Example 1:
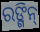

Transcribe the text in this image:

ରଙ୍ଗିନ୍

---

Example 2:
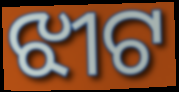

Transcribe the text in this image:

ଝୀଟ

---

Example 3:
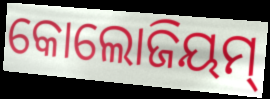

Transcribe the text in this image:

କୋଲୋଜିୟମ୍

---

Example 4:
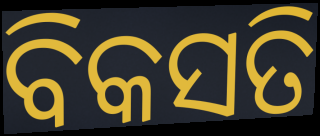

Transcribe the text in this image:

ବିକସତି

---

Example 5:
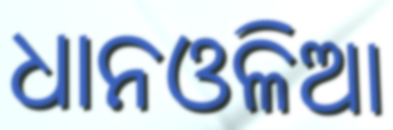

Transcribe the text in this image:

ଧାନଓଳିଆ